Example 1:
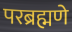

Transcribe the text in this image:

परब्रह्मणे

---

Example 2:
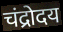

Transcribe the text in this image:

चंद्रोदय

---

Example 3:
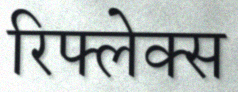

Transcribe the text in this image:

रिफ्लेक्स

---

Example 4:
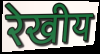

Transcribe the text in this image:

रेखीय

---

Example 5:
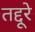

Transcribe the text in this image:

तद्दूरे